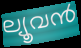
ല്യൂവൻ